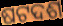
ଷଟଦଶ